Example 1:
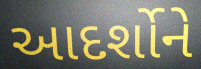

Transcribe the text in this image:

આદર્શોને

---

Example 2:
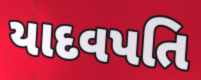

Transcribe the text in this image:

યાદવપતિ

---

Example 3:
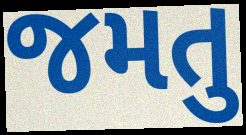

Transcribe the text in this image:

જમતુ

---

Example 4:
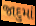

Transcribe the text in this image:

જાદુમાં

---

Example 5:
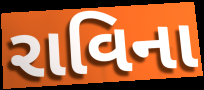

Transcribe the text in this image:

રાવિના